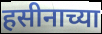
हसीनाच्या